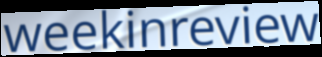
weekinreview